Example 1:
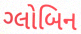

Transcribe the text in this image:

ગ્લોબિન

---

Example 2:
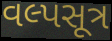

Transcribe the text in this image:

વલ્પસૂત્ર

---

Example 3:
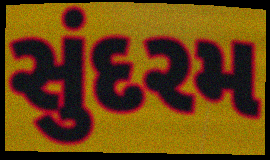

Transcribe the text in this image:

સુંદરમ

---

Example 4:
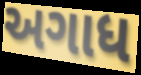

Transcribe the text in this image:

અગાધ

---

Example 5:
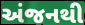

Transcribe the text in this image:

અંજનથી